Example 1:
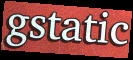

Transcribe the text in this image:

gstatic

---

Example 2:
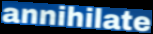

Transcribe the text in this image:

annihilate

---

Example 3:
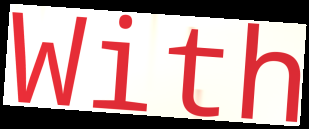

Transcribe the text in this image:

With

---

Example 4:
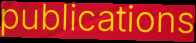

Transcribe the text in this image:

publications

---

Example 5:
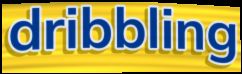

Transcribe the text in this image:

dribbling